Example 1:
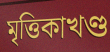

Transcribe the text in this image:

মৃত্তিকাখণ্ড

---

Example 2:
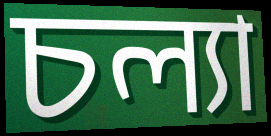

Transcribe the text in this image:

চল্যা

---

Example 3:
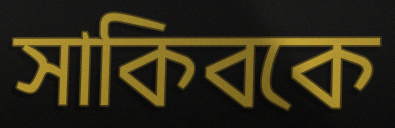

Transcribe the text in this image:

সাকিবকে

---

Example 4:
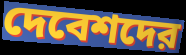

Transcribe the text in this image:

দেবেশদের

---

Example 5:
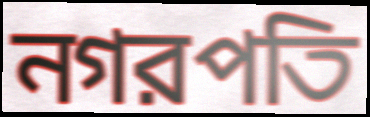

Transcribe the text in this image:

নগরপতি